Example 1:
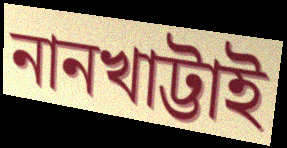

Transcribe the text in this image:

নানখাট্টাই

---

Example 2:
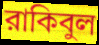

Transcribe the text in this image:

রাকিবুল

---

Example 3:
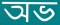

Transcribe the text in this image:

অভ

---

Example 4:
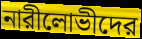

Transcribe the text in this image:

নারীলোভীদের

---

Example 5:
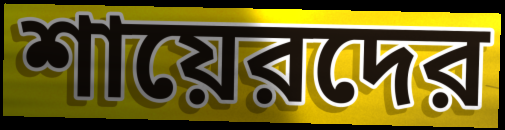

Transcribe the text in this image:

শায়েরদের